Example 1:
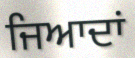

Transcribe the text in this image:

ਜਿਆਦਾਂ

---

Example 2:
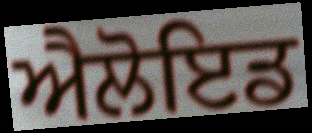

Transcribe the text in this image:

ਐਲੋਇਡ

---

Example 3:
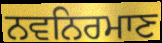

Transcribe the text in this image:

ਨਵਨਿਰਮਾਣ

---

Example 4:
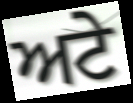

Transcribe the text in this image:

ਅਟੇ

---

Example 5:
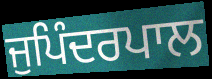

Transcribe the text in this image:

ਜੁਪਿੰਦਰਪਾਲ